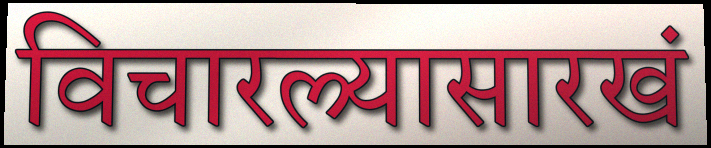
विचारल्यासारखं